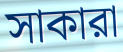
সাকারা